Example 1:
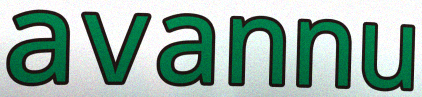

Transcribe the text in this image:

avannu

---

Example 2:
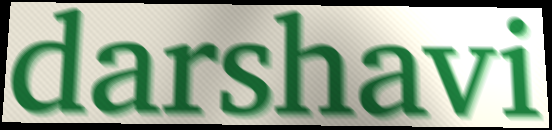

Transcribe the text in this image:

darshavi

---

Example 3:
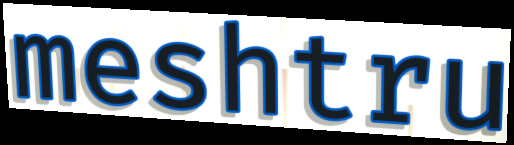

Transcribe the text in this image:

meshtru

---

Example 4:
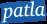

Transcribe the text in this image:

patla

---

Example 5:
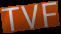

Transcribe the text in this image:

TVF